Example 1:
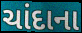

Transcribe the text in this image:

ચાંદાના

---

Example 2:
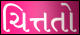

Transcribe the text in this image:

ચિત્તતો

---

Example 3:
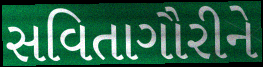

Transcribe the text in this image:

સવિતાગૌરીને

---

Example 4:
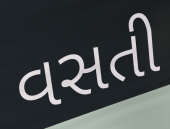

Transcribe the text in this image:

વસતી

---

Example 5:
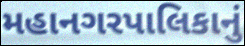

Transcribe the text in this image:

મહાનગરપાલિકાનું